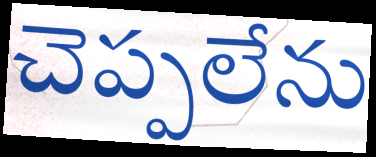
చెప్పలేను